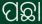
ପଛା